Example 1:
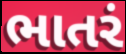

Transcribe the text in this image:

ભાતરં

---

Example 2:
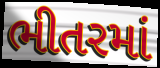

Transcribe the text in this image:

ભીતરમાં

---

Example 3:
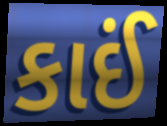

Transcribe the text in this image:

કાઈં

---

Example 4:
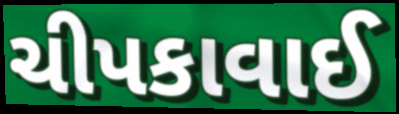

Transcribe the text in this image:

ચીપકાવાઈ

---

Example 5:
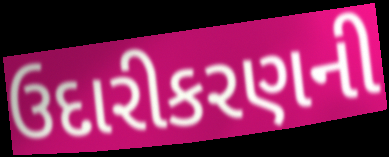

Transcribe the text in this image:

ઉદારીકરણની